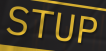
STUP